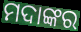
ମଦାଙ୍କର